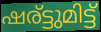
ഷര്ട്ടുമിട്ട്